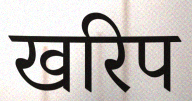
खरिप